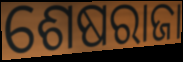
ଶେଷରାଜା